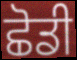
ਛੋਡੀ